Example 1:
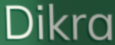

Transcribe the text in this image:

Dikra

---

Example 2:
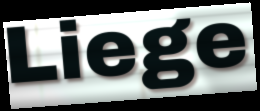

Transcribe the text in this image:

Liege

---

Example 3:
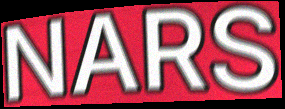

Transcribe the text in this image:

NARS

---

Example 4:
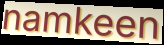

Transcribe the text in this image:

namkeen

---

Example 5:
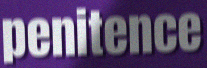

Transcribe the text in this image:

penitence